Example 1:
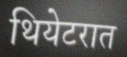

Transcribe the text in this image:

थियेटरात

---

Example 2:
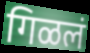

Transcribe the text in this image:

गिळलं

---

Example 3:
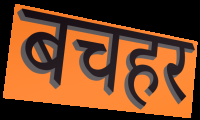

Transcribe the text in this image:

बचहर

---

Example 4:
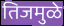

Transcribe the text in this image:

तिजमुळे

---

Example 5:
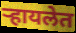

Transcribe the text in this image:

ऱ्हायलेत